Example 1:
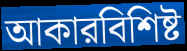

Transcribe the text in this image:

আকারবিশিষ্ট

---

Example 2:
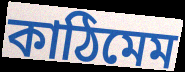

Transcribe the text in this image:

কাঠিমেম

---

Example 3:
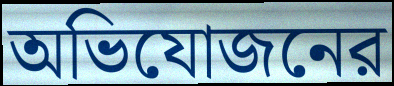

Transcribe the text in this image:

অভিযোজনের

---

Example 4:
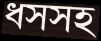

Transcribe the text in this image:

ধসসহ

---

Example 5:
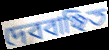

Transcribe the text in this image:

দেববাঞ্ছিত